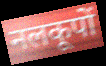
नलकूपों